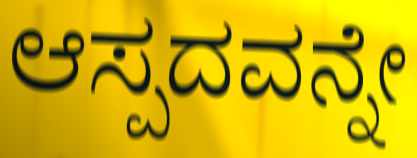
ಆಸ್ಪದವನ್ನೇ